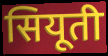
सियूती